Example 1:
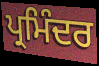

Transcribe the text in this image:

ਪ੍ਰਮਿੰਦਰ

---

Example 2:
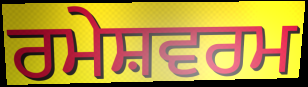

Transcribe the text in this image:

ਰਮੇਸ਼ਵਰਮ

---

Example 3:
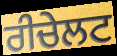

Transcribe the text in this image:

ਰੀਚੇਲਟ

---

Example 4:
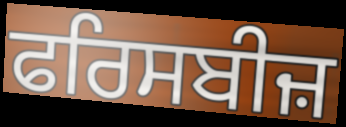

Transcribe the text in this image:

ਫਰਿਸਬੀਜ਼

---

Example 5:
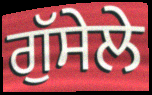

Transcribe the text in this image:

ਗੁੱਸੇਲੇ